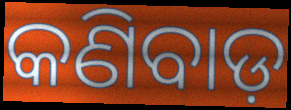
କଣିବାଡ଼